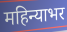
महिन्याभर